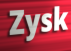
Zysk